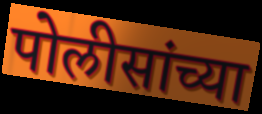
पोलीसांच्या